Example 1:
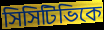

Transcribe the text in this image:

সিসিটিভিকে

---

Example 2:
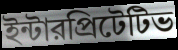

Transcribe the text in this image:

ইন্টারপ্রিটেটিভ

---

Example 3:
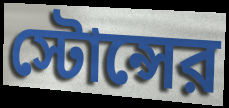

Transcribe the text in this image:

স্টোন্সের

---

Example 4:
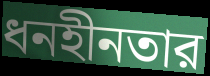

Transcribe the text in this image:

ধনহীনতার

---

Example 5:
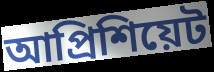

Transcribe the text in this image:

আপ্রিশিয়েট